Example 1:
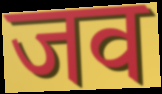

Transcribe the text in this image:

जव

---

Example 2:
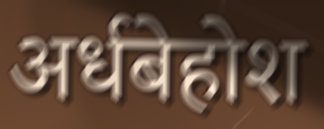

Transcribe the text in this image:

अर्धबेहोश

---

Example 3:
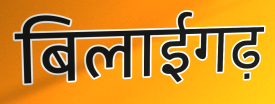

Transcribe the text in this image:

बिलाईगढ़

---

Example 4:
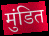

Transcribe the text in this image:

मुंडित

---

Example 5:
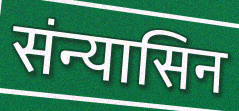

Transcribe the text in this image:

संन्यासिन